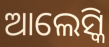
ଆଲେସ୍କି